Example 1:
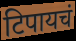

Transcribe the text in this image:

टिपायचं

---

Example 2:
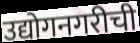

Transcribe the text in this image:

उद्योगनगरीची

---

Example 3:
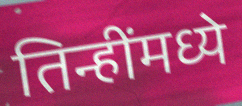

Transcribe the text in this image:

तिन्हींमध्ये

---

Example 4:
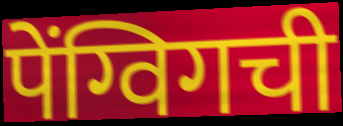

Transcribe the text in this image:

पेंग्विगची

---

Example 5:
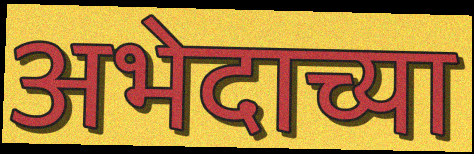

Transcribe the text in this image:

अभेदाच्या